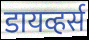
डायव्हर्स